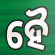
ହୈ